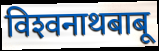
विश्‍वनाथबाबू